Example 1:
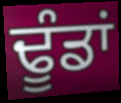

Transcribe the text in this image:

ਢੂੰਡਾਂ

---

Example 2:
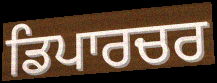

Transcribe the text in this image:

ਡਿਪਾਰਚਰ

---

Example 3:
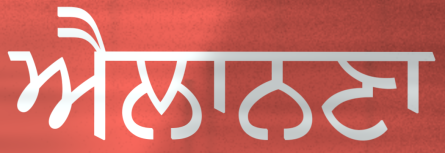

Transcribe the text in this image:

ਐਲਾਨਣਾ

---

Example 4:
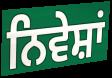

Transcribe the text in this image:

ਨਿਵੇਸ਼ਾਂ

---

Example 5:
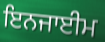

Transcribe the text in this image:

ਇਨਜਾਈਮ